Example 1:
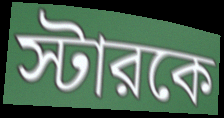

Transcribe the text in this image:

স্টারকে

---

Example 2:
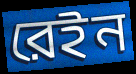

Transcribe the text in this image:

রেইন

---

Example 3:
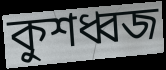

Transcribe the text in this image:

কুশধ্বজ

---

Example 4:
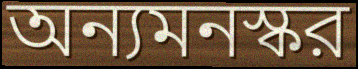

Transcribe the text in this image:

অন্যমনস্কর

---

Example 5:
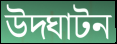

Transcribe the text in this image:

উদ্ঘাটন